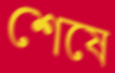
শেষে